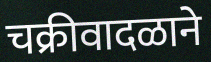
चक्रीवादळाने